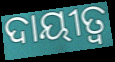
ଦାୟୀତ୍ୱ